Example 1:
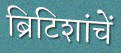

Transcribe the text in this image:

ब्रिटिशांचें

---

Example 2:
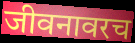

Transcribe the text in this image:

जीवनावरच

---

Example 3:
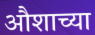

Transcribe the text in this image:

औशाच्या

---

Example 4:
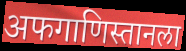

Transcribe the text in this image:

अफगाणिस्तानला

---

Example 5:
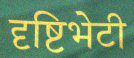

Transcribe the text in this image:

दृष्टिभेटी